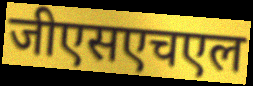
जीएसएचएल